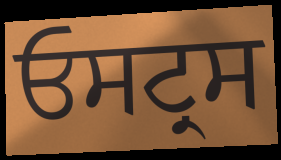
ਓਸਟ੍ਰਸ